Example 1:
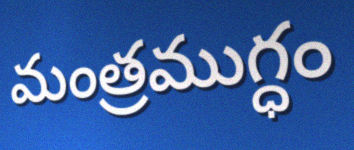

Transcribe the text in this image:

మంత్రముగ్ధం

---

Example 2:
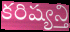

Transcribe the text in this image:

కరిష్యన్తి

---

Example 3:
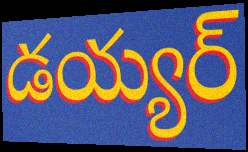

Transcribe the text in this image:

డయ్యర్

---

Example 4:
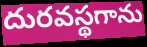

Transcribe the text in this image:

దురవస్థగాను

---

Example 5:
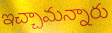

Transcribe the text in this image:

ఇచ్చామన్నారు